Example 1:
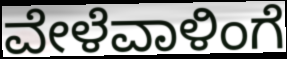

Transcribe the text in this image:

ವೇಳೆವಾಳಿಂಗೆ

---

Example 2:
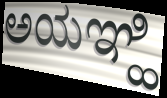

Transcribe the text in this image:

ಅಯಞ್ಹಿ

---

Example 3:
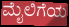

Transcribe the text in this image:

ಮೈಲಿಗೆಯ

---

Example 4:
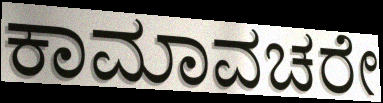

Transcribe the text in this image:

ಕಾಮಾವಚರೇ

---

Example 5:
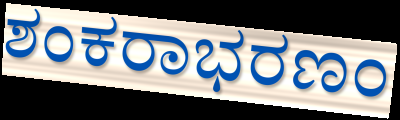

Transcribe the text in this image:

ಶಂಕರಾಭರಣಂ